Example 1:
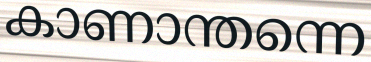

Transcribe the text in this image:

കാണാന്തന്നെ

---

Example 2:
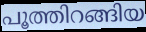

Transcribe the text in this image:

പൂത്തിറങ്ങിയ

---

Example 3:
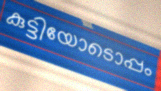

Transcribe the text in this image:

കുട്ടിയോടൊപ്പം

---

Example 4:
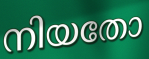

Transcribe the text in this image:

നിയതോ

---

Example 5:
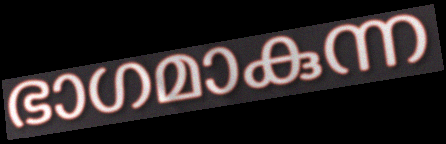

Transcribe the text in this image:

ഭാഗമാകുന്ന